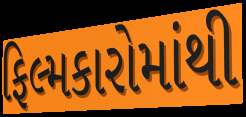
ફિલ્મકારોમાંથી